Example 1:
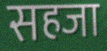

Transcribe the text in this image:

सहजा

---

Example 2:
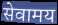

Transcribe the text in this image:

सेवामय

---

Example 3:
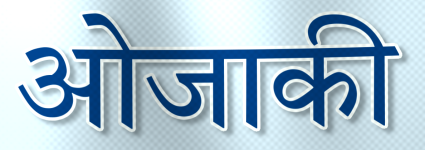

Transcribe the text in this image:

ओजाकी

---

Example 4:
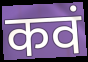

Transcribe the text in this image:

कवं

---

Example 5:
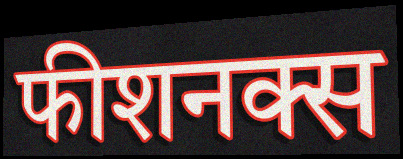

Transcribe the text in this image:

फीशनक्स